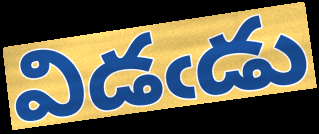
విడఁడు